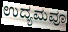
ಉದ್ಯಮವೂ